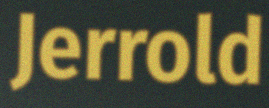
Jerrold